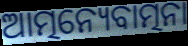
ଆତ୍ମନ୍ୟେବାତ୍ମନା